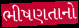
ભીષણતાનો